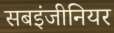
सबइंजीनियर